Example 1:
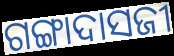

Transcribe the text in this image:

ଗଙ୍ଗାଦାସଜୀ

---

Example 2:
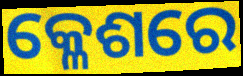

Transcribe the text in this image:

କ୍ଳେଶରେ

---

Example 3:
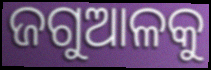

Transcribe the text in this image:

ଜଗୁଆଳକୁ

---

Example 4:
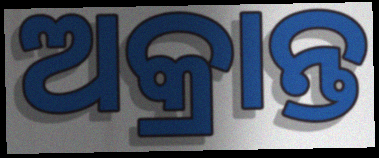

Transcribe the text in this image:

ଅକ୍ରାନ୍ତ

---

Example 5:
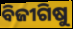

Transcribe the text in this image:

ବିଜୀଗିଷୁ